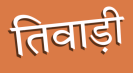
तिवाड़ी